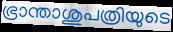
ഭ്രാന്താശുപത്രിയുടെ